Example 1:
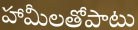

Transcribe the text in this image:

హామీలతోపాటు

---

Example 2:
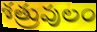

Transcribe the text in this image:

శత్రువులం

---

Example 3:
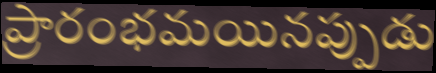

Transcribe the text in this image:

ప్రారంభమయినప్పుడు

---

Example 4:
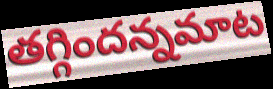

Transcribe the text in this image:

తగ్గిందన్నమాట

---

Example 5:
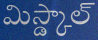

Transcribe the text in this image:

మిస్డ్కాల్